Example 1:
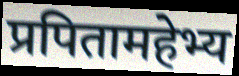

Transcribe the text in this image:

प्रपितामहेभ्य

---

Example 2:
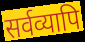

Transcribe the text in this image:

सर्वव्यापि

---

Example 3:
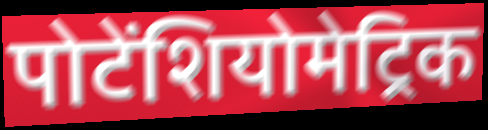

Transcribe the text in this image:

पोटेंशियोमेट्रिक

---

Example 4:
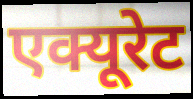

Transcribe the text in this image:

एक्यूरेट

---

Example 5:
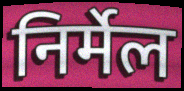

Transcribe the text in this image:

निर्मेल